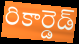
రికార్డెడ్